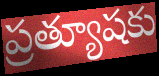
ప్రత్యూషకు